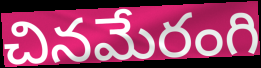
చినమేరంగి